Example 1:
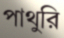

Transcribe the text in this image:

পাথুরি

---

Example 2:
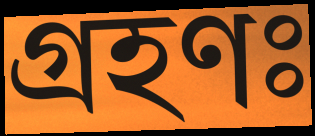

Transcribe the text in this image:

গ্রহণঃ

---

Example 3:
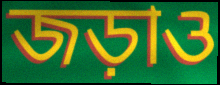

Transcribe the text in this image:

জড়াও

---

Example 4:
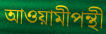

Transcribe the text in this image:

আওয়ামীপন্থী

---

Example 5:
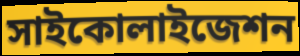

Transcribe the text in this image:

সাইকোলাইজেশন